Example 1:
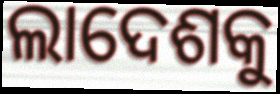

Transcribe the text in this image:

ଲାଦେଶକୁ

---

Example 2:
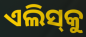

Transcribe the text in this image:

ଏଲିସ୍‌କୁ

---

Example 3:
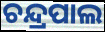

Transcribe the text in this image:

ଚନ୍ଦ୍ରପାଲ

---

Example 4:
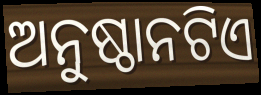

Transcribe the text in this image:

ଅନୁଷ୍ଠାନଟିଏ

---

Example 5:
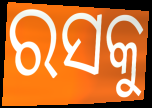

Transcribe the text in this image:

ରସକୁ